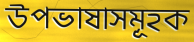
উপভাষাসমূহক